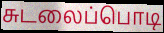
சுடலைப்பொடி